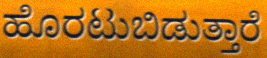
ಹೊರಟುಬಿಡುತ್ತಾರೆ